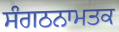
ਸੰਗਠਨਾਮਤਕ